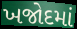
ખજોદમાં